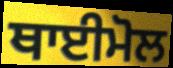
ਥਾਈਮੋਲ